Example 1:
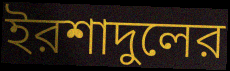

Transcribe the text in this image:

ইরশাদুলের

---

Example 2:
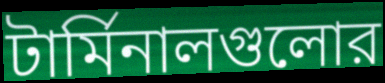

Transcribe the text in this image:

টার্মিনালগুলোর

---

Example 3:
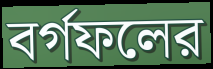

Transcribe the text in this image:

বর্গফলের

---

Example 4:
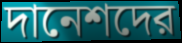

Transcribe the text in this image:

দানেশদের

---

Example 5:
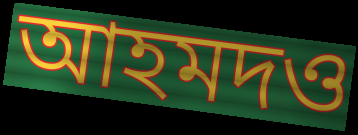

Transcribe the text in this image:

আহমদও